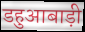
डहुआबाड़ी